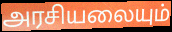
அரசியலையும்